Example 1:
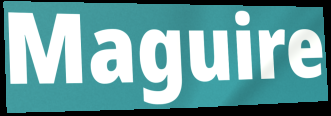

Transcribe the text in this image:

Maguire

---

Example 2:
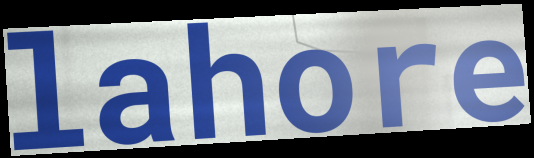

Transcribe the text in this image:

lahore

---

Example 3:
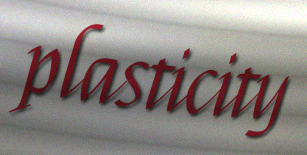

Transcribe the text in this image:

plasticity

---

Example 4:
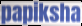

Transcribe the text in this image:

papiksha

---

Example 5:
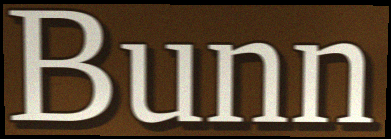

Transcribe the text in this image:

Bunn